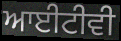
ਆਈਟੀਵੀ